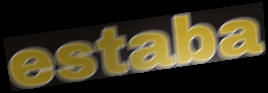
estaba